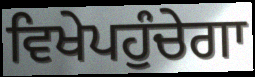
ਵਿਖੇਪਹੁੰਚੇਗਾ